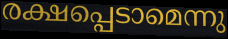
രക്ഷപ്പെടാമെന്നു